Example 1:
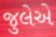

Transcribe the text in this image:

જુલેએ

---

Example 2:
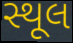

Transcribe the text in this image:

સ્થૂલ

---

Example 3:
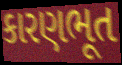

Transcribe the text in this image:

કારણભૂત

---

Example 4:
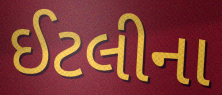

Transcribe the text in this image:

ઈટલીના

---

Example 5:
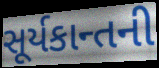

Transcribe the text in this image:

સૂર્યકાન્તની